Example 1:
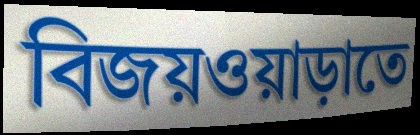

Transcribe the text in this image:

বিজয়ওয়াড়াতে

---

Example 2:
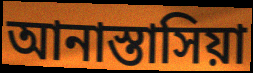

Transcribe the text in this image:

আনাস্তাসিয়া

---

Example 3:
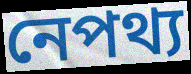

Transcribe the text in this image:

নেপথ্য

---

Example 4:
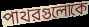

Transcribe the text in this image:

পাথরগুলোকে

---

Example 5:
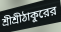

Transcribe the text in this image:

শ্রীশ্রীঠাকুরের